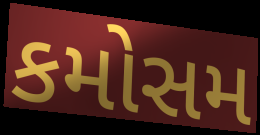
કમોસમ